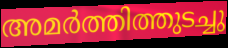
അമർത്തിത്തുടച്ചു